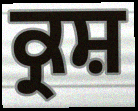
ਕ੍ਰਸ਼